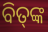
ବିତ୍‌ଙ୍କ